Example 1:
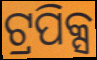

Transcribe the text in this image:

ଟ୍ରପିକ୍ସ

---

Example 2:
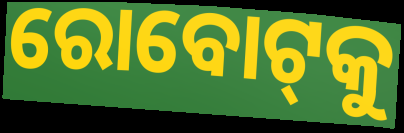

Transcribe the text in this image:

ରୋବୋଟ୍‌କୁ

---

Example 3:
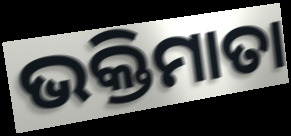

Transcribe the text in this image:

ଭକ୍ତିମାତା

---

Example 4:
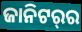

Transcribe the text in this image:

ଜାନିଟର୍‌ର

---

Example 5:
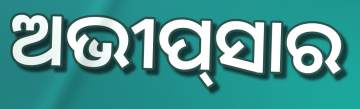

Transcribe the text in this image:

ଅଭୀପ୍‌ସାର